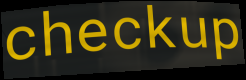
checkup